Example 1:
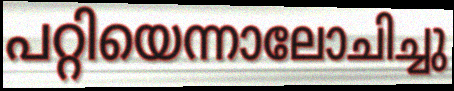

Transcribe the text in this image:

പറ്റിയെന്നാലോചിച്ചു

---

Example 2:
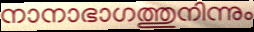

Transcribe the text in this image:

നാനാഭാഗത്തുനിന്നും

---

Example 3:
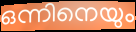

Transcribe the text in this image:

ഒന്നിനെയും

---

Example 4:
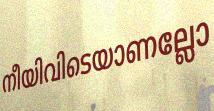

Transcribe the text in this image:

നീയിവിടെയാണല്ലോ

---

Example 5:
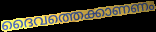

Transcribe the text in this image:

ദൈവത്തെക്കാണണം